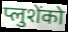
प्लुशेंको